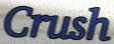
Crush